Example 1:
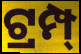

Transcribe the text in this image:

ଟ୍ରମ୍ପ୍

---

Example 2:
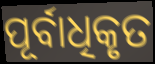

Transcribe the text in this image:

ପୂର୍ବାଧିକୃତ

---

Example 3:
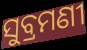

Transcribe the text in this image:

ସୁବ୍ରମଣୀ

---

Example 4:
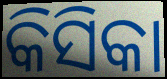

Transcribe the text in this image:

କିସିକା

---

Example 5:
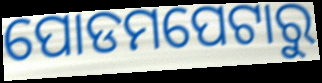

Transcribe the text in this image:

ପୋଡମପେଟାରୁ